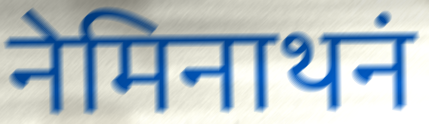
नेमिनाथनं